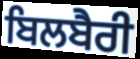
ਬਿਲਬੈਰੀ